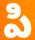
పి